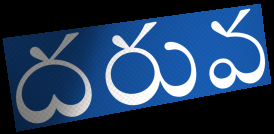
దరువ